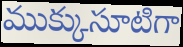
ముక్కుసూటిగా